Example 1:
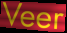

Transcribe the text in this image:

Veer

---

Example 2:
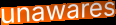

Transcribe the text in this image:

unawares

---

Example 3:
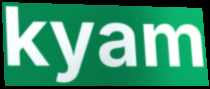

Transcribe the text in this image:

kyam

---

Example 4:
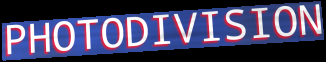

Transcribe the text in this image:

PHOTODIVISION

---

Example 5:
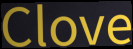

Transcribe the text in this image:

Clove